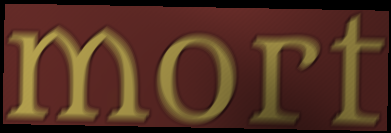
mort